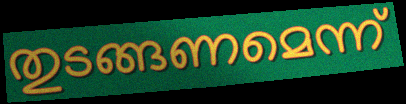
തുടങ്ങണമെന്ന്